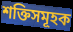
শক্তিসমূহক